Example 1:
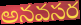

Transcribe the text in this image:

అనవసర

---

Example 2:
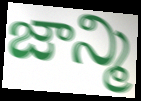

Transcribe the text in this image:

జాన్మి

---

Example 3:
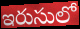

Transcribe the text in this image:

ఇరుసులో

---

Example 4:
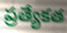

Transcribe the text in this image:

ప్రత్యేకత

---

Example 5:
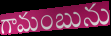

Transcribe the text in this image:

గామంబును